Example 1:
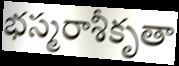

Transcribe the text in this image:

భస్మరాశీకృతా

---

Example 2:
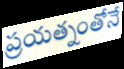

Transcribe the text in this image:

ప్రయత్నంతోనే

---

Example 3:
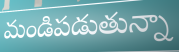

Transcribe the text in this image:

మండిపడుతున్నా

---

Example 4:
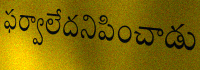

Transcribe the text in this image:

ఫర్వాలేదనిపించాడు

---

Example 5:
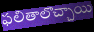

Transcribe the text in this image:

ఫలితాలొచ్చాయి